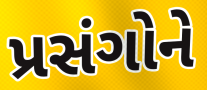
પ્રસંગોને